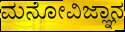
ಮನೋವಿಜ್ಞಾನ